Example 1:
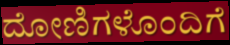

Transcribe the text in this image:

ದೋಣಿಗಳೊಂದಿಗೆ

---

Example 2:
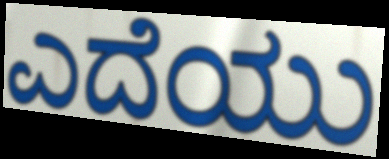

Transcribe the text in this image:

ಎದೆಯು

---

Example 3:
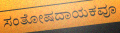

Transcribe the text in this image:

ಸಂತೋಷದಾಯಕವೂ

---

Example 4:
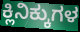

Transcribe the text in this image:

ಕ್ಲಿನಿಕ್ಕುಗಳ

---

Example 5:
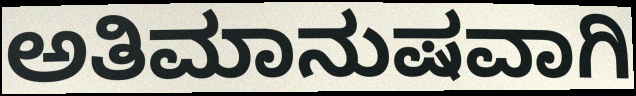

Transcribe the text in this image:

ಅತಿಮಾನುಷವಾಗಿ